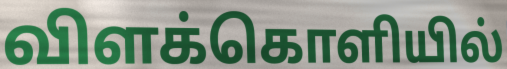
விளக்கொளியில்